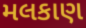
મલકાણ